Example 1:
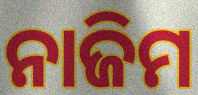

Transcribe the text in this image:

ନାଜିମ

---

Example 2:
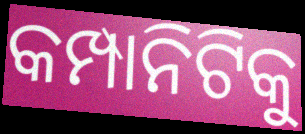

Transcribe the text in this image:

କମ୍ପାନିଟିକୁ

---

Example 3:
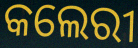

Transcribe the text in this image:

କଲେରୀ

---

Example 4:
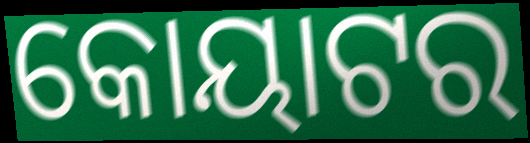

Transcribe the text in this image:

କୋୟାଟର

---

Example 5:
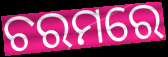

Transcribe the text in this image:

ଚରମରେ